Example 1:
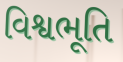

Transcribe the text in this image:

વિશ્વભૂતિ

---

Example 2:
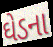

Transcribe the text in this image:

ઘેડના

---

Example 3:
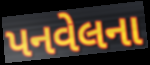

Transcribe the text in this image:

પનવેલના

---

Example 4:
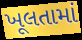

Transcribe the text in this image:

ખૂલતામાં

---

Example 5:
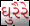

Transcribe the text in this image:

ઘુરૈરે